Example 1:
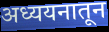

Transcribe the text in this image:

अध्ययनातून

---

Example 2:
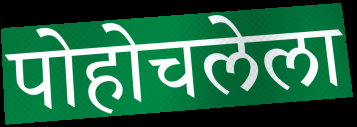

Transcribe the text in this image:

पोहोचलेला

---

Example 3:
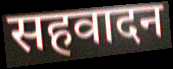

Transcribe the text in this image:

सहवादन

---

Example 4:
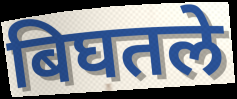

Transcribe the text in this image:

बिघतले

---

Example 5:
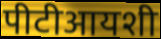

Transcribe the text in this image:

पीटीआयशी